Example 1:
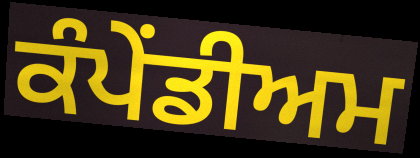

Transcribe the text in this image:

ਕੰਪੇਂਡੀਅਮ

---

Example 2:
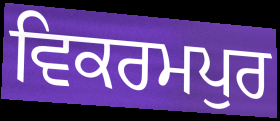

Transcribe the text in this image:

ਵਿਕਰਮਪੁਰ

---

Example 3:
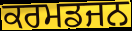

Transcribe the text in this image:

ਕਰਮਡਜਨ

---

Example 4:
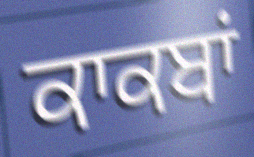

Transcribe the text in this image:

ਕਾਕਬਾਂ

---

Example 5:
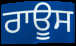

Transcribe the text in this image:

ਰਾਊਸ